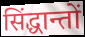
सिंद्धान्तों